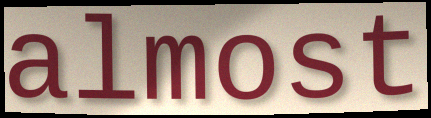
almost